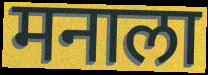
मनाला